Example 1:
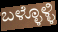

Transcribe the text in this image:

ಬಳ್ಳೊಳ್ಳಿ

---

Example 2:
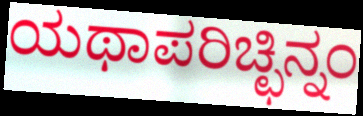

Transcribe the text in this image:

ಯಥಾಪರಿಚ್ಛಿನ್ನಂ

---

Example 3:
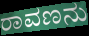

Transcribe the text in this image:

ರಾವಣನು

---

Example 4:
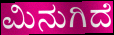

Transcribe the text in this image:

ಮಿನುಗಿದೆ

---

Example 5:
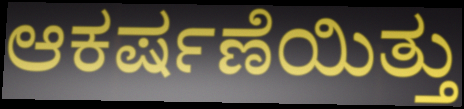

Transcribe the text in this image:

ಆಕರ್ಷಣೆಯಿತ್ತು